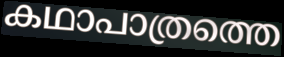
കഥാപാത്രത്തെ